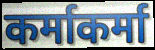
कर्माकर्मा